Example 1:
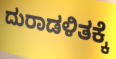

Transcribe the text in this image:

ದುರಾಡಳಿತಕ್ಕೆ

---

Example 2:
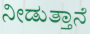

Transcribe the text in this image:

ನೀಡುತ್ತಾನೆ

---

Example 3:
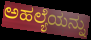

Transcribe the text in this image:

ಅಹಲ್ಯೆಯನ್ನು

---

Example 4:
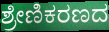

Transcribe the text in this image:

ಶ್ರೇಣಿಕರಣದ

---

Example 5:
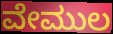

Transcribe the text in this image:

ವೇಮುಲ